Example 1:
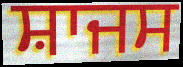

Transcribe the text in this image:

ਸ਼ਾਜਸ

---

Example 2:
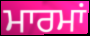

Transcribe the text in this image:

ਮਾਰਮਾਂ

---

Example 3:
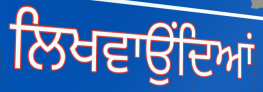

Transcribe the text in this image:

ਲਿਖਵਾਉਂਦਿਆਂ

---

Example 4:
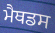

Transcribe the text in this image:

ਮੈਥਡਸ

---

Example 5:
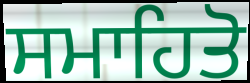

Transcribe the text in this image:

ਸਮਾਹਿਤੋ